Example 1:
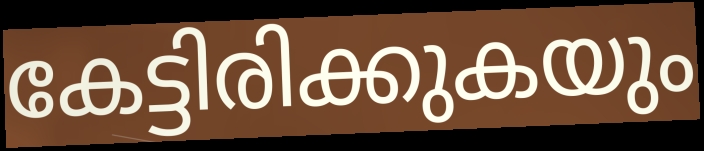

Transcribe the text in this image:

കേട്ടിരിക്കുകയും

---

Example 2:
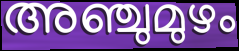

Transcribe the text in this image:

അഞ്ചുമുഴം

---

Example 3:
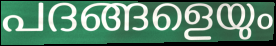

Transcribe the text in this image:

പദങ്ങളെയും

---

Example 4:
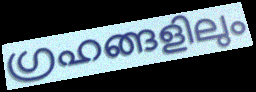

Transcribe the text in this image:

ഗ്രഹങ്ങളിലും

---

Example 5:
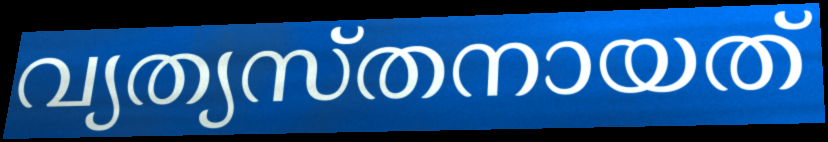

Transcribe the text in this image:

വ്യത്യസ്തനായത്